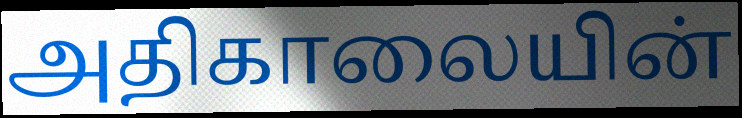
அதிகாலையின்